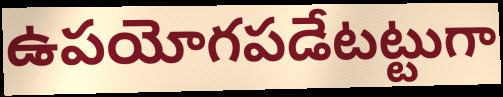
ఉపయోగపడేటట్టుగా